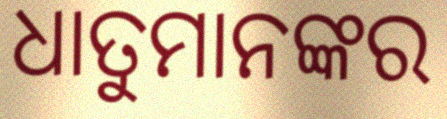
ଧାତୁମାନଙ୍କର